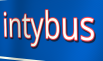
intybus